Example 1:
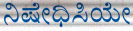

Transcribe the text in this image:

ನಿಷೇಧಿಸಿಯೇ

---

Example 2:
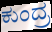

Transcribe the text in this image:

ಕುಂದ್ರ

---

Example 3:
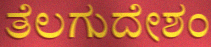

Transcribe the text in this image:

ತೆಲಗುದೇಶಂ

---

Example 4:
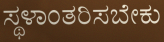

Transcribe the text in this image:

ಸ್ಥಳಾಂತರಿಸಬೇಕು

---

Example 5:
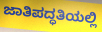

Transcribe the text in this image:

ಜಾತಿಪದ್ಧತಿಯಲ್ಲಿ